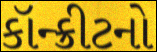
કૉન્ક્રીટનો